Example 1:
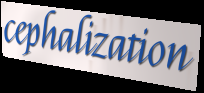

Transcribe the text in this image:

cephalization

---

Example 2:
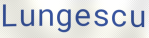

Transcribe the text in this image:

Lungescu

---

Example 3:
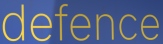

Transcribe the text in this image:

defence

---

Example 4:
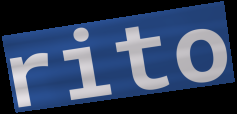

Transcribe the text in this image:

rito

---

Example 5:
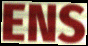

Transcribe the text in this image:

ENS